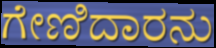
ಗೇಣಿದಾರನು